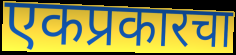
एकप्रकारचा